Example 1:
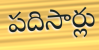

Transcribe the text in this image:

పదిసార్లు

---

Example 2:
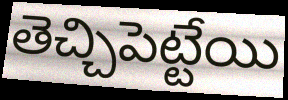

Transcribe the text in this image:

తెచ్చిపెట్టేయి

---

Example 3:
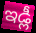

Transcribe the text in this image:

ఇడ్లీ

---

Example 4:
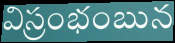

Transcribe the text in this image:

విస్రంభంబున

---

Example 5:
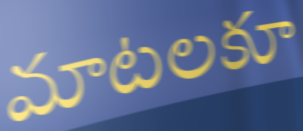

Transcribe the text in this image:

మాటలకూ